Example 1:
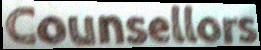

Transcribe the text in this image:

Counsellors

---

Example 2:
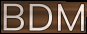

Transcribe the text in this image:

BDM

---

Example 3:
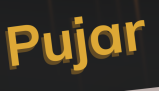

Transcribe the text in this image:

Pujar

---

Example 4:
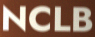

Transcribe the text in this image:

NCLB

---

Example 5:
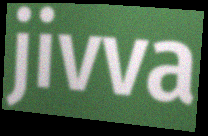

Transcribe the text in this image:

jivva